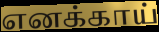
எனக்காய்